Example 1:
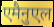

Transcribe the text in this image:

एमैनुएल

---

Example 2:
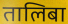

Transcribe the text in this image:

तालिबा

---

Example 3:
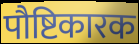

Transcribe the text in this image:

पौष्टिकारक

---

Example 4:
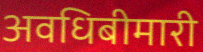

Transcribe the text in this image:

अवधिबीमारी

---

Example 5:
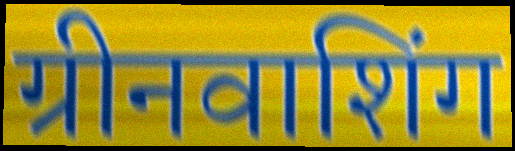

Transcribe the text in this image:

ग्रीनवाशिंग